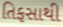
તિફસાથી